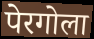
पेरगोला